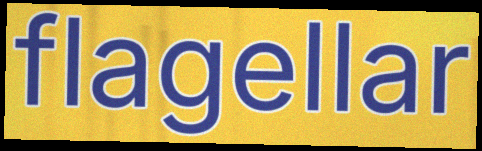
flagellar